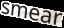
smear